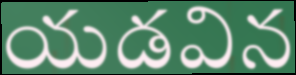
యడవిన